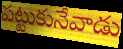
పట్టుకునేవాడు